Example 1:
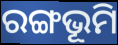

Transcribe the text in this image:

ରଙ୍ଗଭୂମି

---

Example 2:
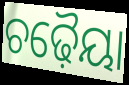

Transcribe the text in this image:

ଚଢ଼ୈୟା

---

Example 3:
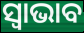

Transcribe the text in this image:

ସ୍ୱାଭାବ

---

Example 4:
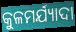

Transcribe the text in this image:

କୁଳମର୍ଯ୍ୟାଦା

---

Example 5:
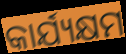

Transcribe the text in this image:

କାର୍ଯ୍ୟକ୍ଷମ